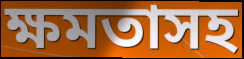
ক্ষমতাসহ